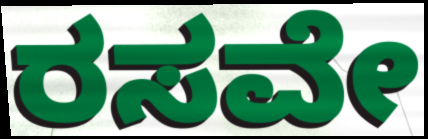
ರಸವೇ